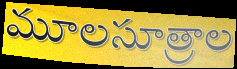
మూలసూత్రాల